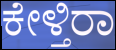
ಕೇಳ್ತಿರಾ